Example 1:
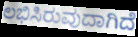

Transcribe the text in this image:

ಲಭಿಸಿರುವುದಾಗಿದೆ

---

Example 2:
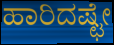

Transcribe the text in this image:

ಹಾರಿದಷ್ಟೇ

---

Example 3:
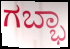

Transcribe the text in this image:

ಗಬ್ಭಾ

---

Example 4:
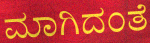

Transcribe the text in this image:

ಮಾಗಿದಂತೆ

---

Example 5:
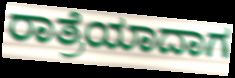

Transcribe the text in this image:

ರಾತ್ರೆಯಾದಾಗ